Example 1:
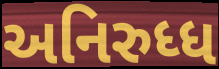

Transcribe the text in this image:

અનિરુધ્ધ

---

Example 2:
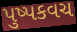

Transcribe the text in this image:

પુષ્પકવચ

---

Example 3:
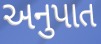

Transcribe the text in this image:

અનુપાત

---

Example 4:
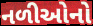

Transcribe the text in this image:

નળીઓનો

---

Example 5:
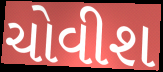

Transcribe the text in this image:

ચોવીશ